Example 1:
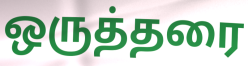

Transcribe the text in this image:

ஒருத்தரை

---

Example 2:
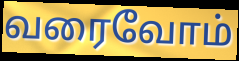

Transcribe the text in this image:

வரைவோம்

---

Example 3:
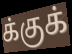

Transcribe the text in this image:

க்குக்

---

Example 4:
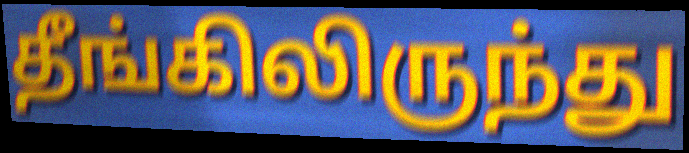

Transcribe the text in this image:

தீங்கிலிருந்து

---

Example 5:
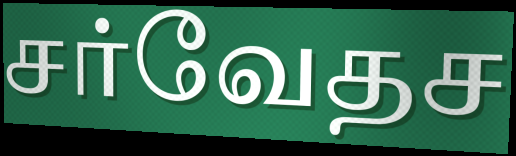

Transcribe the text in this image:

சர்வேதச